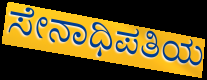
ಸೇನಾಧಿಪತಿಯ